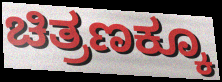
ಚಿತ್ರಣಕ್ಕೂ